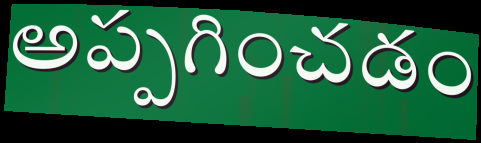
అప్పగించడం